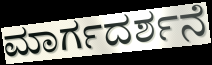
ಮಾರ್ಗದರ್ಶನೆ